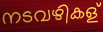
നടവഴികള്